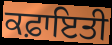
ਕਫ਼ਾਇਤੀ